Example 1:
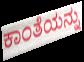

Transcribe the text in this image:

ಕಾಂತೆಯನ್ನು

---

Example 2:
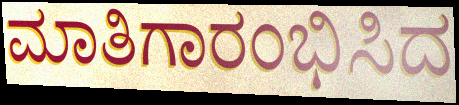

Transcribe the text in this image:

ಮಾತಿಗಾರಂಭಿಸಿದ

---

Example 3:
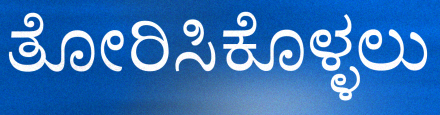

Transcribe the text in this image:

ತೋರಿಸಿಕೊಳ್ಳಲು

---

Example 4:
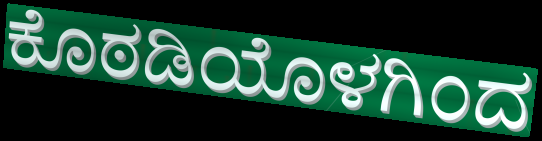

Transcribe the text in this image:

ಕೊಠಡಿಯೊಳಗಿಂದ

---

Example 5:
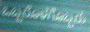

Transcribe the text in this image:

ಒಬ್ಬರೊಳಗೊಬ್ಬರು